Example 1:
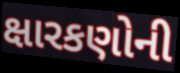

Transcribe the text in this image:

ક્ષારકણોની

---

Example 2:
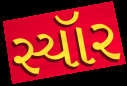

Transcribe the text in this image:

સ્યૉર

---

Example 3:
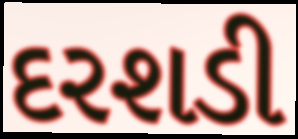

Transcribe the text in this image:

દરશડી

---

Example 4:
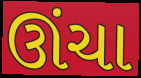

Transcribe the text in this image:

ઊંચા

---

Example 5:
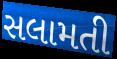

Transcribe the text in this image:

સલામતી